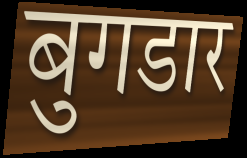
बुगडार